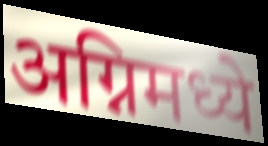
अग्निमध्ये